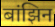
बांझिन